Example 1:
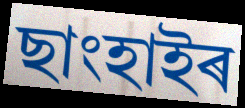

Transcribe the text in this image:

ছাংহাইৰ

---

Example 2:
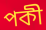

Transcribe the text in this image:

পকী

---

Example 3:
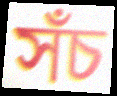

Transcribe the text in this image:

সঁচ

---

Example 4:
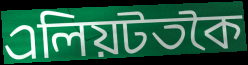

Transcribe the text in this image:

এলিয়টতকৈ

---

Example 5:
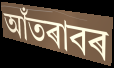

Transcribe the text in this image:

আঁতৰাবৰ